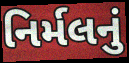
નિર્મલનું